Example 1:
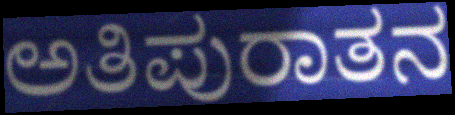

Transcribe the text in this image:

ಅತಿಪುರಾತನ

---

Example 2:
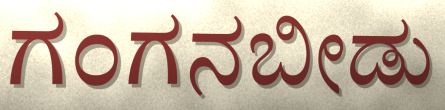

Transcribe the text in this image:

ಗಂಗನಬೀಡು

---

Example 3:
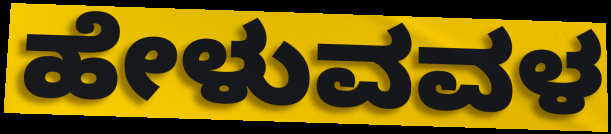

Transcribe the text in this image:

ಹೇಳುವವಳ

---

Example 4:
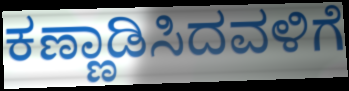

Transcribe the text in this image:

ಕಣ್ಣಾಡಿಸಿದವಳಿಗೆ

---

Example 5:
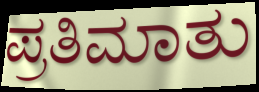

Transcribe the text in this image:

ಪ್ರತಿಮಾತು